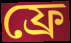
ফ্রে